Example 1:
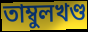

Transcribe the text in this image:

তাম্বুলখণ্ড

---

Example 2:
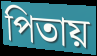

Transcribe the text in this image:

পিতায়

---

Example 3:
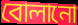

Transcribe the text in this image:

বোলানো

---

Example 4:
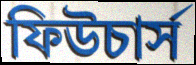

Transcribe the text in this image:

ফিউচার্স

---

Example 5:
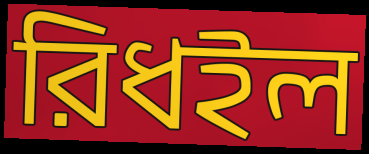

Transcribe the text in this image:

রিধইল